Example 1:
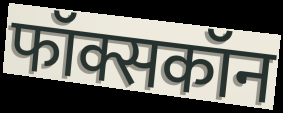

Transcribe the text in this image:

फॉक्सकॉन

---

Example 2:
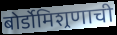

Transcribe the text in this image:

बोर्डोमिश्रणाची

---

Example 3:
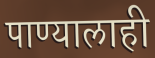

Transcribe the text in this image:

पाण्यालाही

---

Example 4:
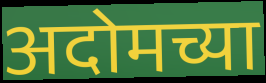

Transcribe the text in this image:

अदोमच्या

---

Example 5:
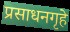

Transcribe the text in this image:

प्रसाधनगृहे